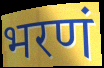
भरणं